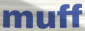
muff